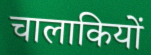
चालाकियों